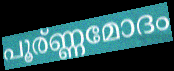
പൂര്ണ്ണമോദം